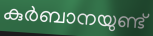
കുർബാനയുണ്ട്